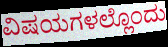
ವಿಷಯಗಳಲ್ಲೊಂದು